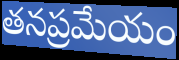
తనప్రమేయం